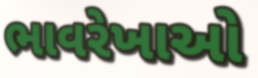
ભાવરેખાઓ